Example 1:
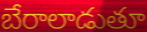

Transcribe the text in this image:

బేరాలాడుతూ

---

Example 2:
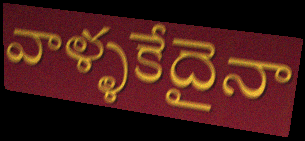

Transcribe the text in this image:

వాళ్ళకేదైనా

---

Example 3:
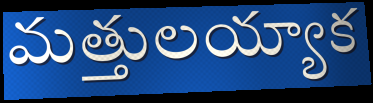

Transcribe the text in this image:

మత్తులయ్యాక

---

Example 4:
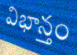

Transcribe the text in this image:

విభాన్తం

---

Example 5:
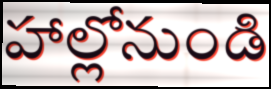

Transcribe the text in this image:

హాల్లోనుండి